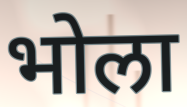
भोला